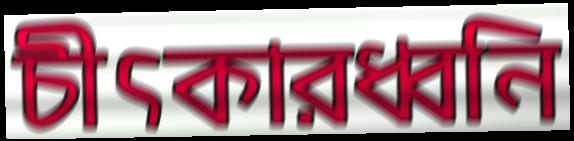
চীৎকারধ্বনি